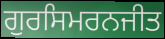
ਗੁਰਸਿਮਰਨਜੀਤ